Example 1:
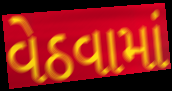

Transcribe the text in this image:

વેઠવામાં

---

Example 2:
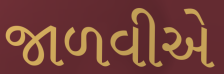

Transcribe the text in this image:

જાળવીએ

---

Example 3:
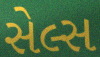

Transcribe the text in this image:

સેલ્સ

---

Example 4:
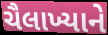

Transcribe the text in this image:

ચૈલાખ્યાને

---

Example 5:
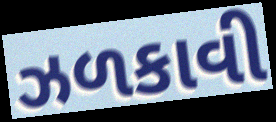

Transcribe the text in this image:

ઝળકાવી